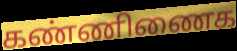
கண்ணிணைக